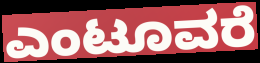
ಎಂಟೂವರೆ